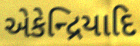
એકેન્દ્રિયાદિ